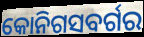
କୋନିଗସବର୍ଗର